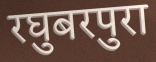
रघुबरपुरा